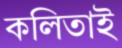
কলিতাই